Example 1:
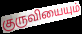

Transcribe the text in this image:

குருவியையும்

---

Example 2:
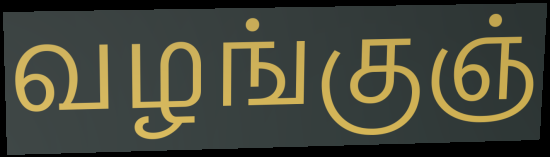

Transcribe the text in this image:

வழங்குஞ்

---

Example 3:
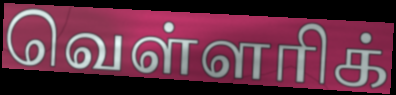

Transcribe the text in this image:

வெள்ளரிக்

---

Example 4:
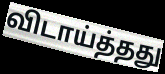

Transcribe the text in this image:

விடாய்த்தது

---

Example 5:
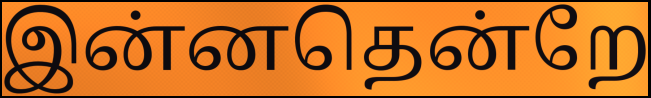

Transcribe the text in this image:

இன்னதென்றே